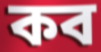
কব